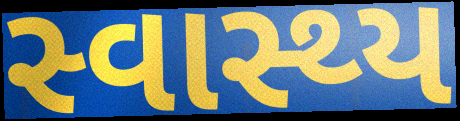
સ્વાસ્થ્ય